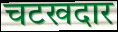
चटखदार